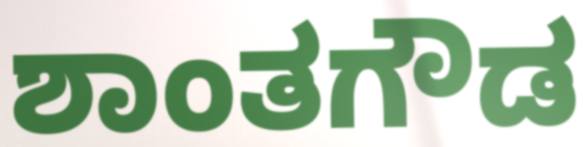
ಶಾಂತಗೌಡ